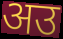
अउ